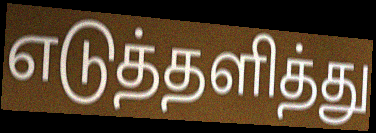
எடுத்தளித்து